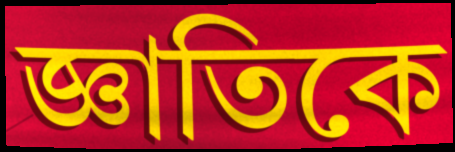
জ্ঞাতিকে